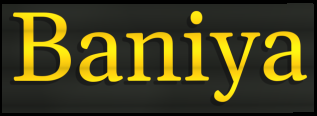
Baniya